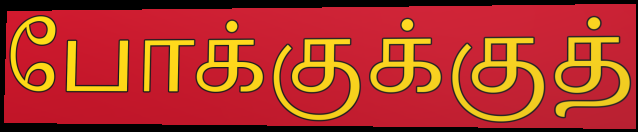
போக்குக்குத்